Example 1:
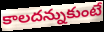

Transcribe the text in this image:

కాలదన్నుకుంటే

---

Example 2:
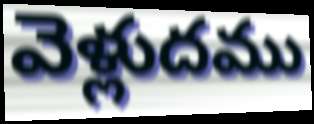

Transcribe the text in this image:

వెళ్లుదము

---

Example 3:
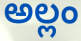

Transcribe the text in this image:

అల్లం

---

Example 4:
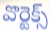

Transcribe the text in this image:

వొర్టెక్స్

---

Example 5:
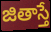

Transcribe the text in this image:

జితాస్తే